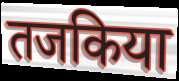
तजकिया